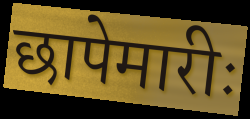
छापेमारीः